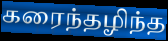
கரைந்தழிந்த